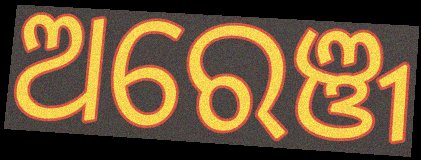
ଅରେଞ୍ଜ